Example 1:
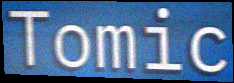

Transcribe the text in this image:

Tomic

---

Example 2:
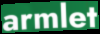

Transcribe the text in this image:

armlet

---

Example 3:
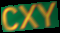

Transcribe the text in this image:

CXY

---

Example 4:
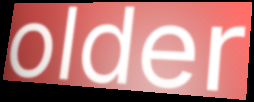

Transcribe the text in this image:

older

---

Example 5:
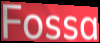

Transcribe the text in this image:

Fossa